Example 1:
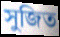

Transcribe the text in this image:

সুজিত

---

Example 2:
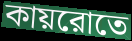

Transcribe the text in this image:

কায়রোতে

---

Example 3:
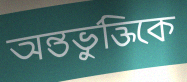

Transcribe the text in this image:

অন্তর্ভুক্তিকে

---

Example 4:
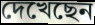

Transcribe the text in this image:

দেখেছেন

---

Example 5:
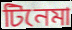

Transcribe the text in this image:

টিনেমা